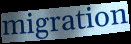
migration